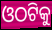
ଓଠଟିକୁ